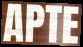
APTE